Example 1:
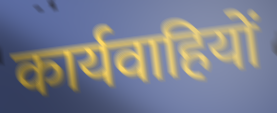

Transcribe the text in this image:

कार्यवाहियों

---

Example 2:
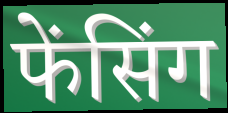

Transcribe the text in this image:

फेंसिंग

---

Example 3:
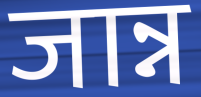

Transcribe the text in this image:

जान्न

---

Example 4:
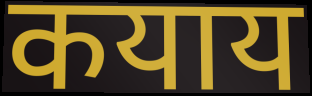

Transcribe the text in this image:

कयाय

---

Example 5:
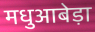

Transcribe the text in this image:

मधुआबेड़ा